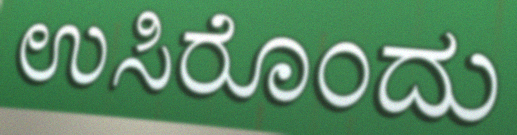
ಉಸಿರೊಂದು